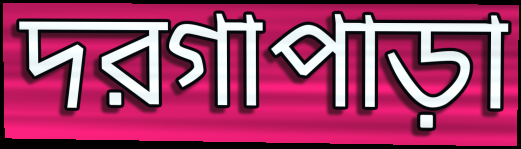
দরগাপাড়া